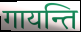
गायन्ति